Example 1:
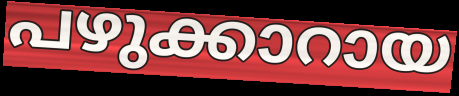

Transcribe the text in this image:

പഴുക്കാറായ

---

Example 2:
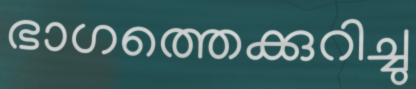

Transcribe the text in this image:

ഭാഗത്തെക്കുറിച്ചു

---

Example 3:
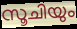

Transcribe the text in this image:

സൂചിയും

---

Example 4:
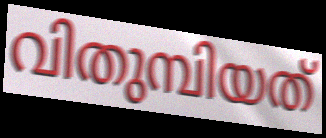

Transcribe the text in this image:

വിതുമ്പിയത്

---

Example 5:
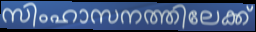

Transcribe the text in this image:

സിംഹാസനത്തിലേക്ക്